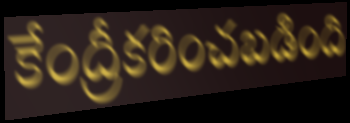
కేంద్రీకరించబడింది